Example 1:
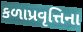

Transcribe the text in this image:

કળાપ્રવૃત્તિના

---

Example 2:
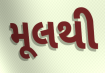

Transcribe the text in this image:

મૂલથી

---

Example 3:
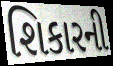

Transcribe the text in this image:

શિકારની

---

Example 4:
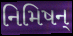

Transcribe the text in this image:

નિમિષન્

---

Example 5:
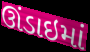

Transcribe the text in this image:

ઊંડાઇમાં